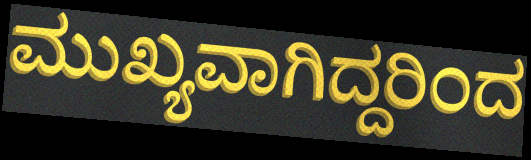
ಮುಖ್ಯವಾಗಿದ್ದರಿಂದ